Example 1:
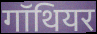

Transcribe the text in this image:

गॉथियर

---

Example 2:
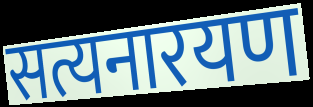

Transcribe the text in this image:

सत्यनारयण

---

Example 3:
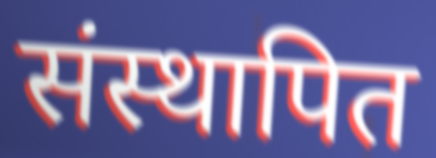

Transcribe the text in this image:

संस्थापित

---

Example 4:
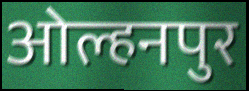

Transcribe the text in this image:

ओल्हनपुर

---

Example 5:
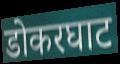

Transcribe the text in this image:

डोकरघाट